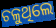
ଚଳୁଥିଲେ